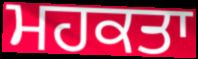
ਮਹਕਤਾ